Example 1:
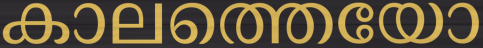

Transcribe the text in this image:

കാലത്തെയോ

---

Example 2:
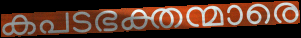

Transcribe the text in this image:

കപടഭക്തന്മാരെ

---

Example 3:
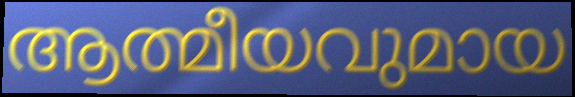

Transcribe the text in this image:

ആത്മീയവുമായ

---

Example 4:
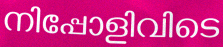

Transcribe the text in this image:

നിപ്പോളിവിടെ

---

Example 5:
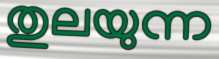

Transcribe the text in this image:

തുലയുന്ന